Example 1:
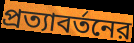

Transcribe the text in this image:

প্রত্যাবর্তনের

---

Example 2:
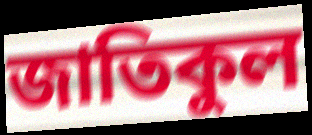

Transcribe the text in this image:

জাতিকুল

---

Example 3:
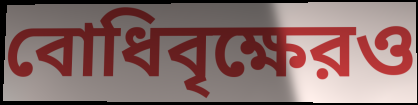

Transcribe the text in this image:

বোধিবৃক্ষেরও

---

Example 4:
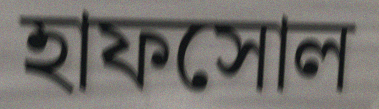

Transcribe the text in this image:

হাফসোল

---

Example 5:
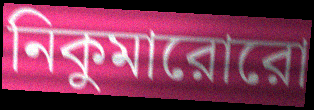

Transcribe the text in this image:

নিকুমারোরো